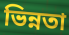
ভিন্নতা